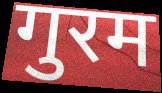
गुरम